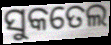
ସୁକତେଲ